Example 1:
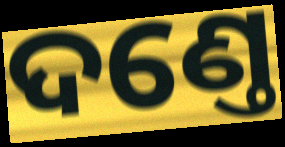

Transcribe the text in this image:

ଦଣ୍ତେ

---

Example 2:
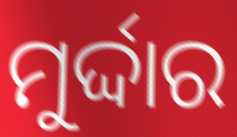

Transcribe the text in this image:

ମୁର୍ଦ୍ଦାର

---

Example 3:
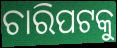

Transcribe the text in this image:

ଚାରିପଟକୁ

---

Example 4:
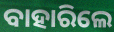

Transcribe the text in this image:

ବାହାରିଲେ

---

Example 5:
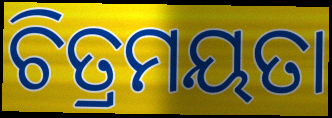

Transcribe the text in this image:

ଚିତ୍ରମୟତା